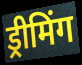
ड्रीमिंग